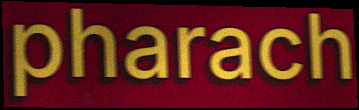
pharach